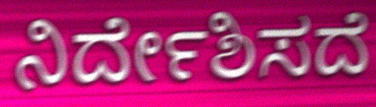
ನಿರ್ದೇಶಿಸದೆ